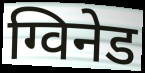
ग्विनेड